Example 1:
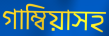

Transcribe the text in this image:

গাম্বিয়াসহ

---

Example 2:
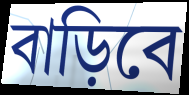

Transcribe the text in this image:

বাড়িবে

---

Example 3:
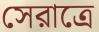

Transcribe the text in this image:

সেরাত্রে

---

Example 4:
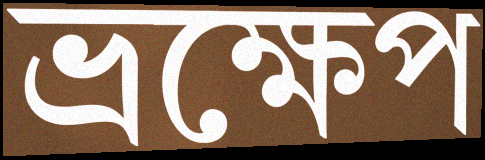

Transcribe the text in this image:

ভ্রক্ষেপ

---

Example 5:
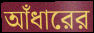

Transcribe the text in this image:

আঁধারের